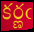
కర్ణఁ